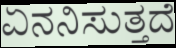
ಏನನಿಸುತ್ತದೆ